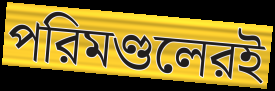
পরিমণ্ডলেরই